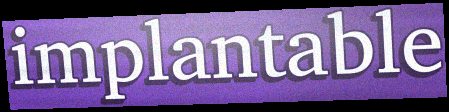
implantable